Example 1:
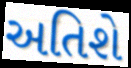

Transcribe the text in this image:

અતિશે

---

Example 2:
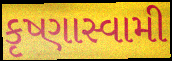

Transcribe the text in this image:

કૃષ્ણાસ્વામી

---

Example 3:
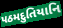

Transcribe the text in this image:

પઠમદુતિયાનિ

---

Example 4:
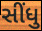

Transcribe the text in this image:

સીંધુ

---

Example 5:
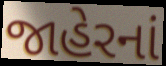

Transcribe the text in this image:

જાહેરનાં